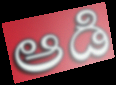
ఆడి